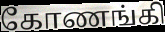
கோணங்கி